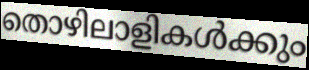
തൊഴിലാളികൾക്കും